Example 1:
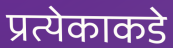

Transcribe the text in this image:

प्रत्येकाकडे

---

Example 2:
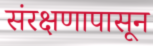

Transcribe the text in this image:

संरक्षणापासून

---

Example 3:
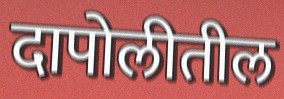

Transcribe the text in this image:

दापोलीतील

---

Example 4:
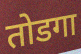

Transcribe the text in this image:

तोडगा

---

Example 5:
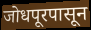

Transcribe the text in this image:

जोधपूरपासून